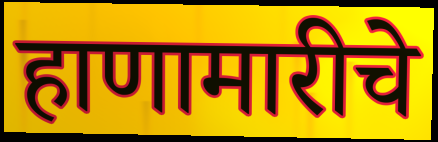
हाणामारीचे